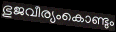
ഭുജവീര്യംകൊണ്ടും